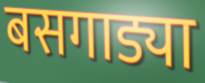
बसगाड्या